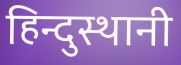
हिन्दुस्थानी